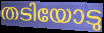
തടിയോടു